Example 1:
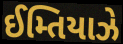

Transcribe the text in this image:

ઈમ્તિયાઝે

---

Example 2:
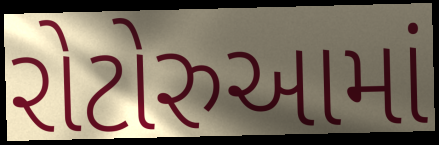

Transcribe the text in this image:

રોટોરુઆમાં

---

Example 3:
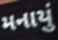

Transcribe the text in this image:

મનાયું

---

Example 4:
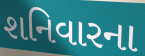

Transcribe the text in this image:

શનિવારના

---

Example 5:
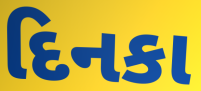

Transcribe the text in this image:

દિનકા